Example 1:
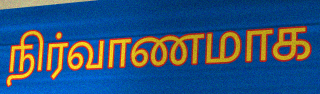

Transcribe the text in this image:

நிர்வாணமாக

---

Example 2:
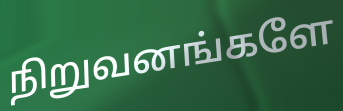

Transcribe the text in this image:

நிறுவனங்களே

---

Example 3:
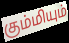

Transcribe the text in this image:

கும்மியும்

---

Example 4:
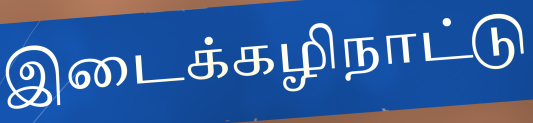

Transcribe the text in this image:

இடைக்கழிநாட்டு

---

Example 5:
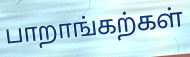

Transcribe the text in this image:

பாறாங்கற்கள்